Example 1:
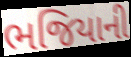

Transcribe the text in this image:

ભજિયાની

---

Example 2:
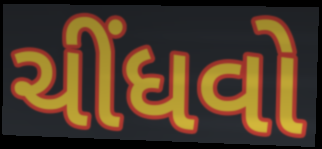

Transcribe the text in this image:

ચીંધવો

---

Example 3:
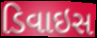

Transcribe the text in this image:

ડિવાઇસ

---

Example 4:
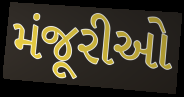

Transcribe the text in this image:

મંજૂરીઓ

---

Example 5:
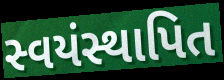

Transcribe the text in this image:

સ્વયંસ્થાપિત